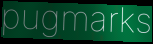
pugmarks